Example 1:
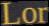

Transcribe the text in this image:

Lor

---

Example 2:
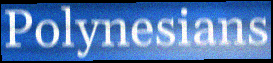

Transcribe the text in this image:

Polynesians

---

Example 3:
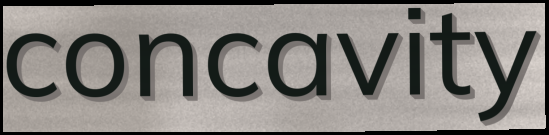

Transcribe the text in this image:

concavity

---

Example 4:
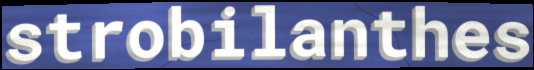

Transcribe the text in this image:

strobilanthes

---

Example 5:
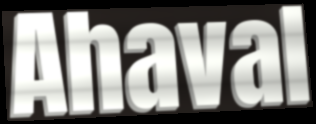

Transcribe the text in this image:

Ahaval